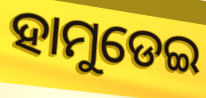
ହାମୁଡେଇ